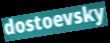
dostoevsky